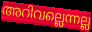
അറിവല്ലെന്നല്ല